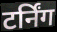
टर्निंग